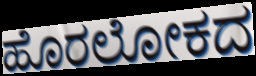
ಹೊರಲೋಕದ